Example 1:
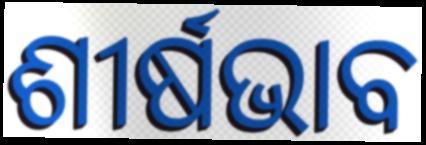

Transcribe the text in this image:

ଶୀର୍ଷଭାବ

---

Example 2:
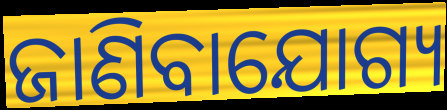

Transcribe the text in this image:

ଜାଣିବାଯୋଗ୍ୟ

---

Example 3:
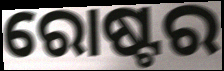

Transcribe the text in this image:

ରୋଷ୍ଟର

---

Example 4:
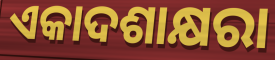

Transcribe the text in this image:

ଏକାଦଶାକ୍ଷରା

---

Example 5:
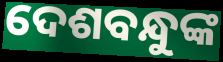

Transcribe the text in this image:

ଦେଶବନ୍ଧୁଙ୍କ